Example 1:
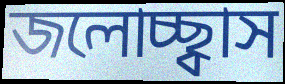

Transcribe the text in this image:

জলোচ্ছ্বাস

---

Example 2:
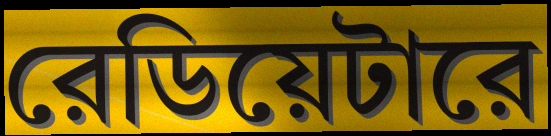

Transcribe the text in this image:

রেডিয়েটারে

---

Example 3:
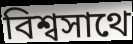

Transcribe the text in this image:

বিশ্বসাথে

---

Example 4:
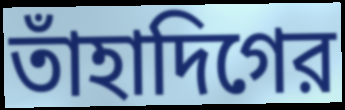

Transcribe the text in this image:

তাঁহাদিগের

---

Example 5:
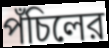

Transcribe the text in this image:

পঁচিলের